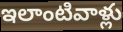
ఇలాంటివాళ్లు